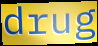
drug